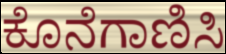
ಕೊನೆಗಾಣಿಸಿ